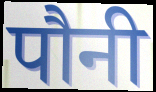
पौनी